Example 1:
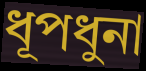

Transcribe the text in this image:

ধূপধুনা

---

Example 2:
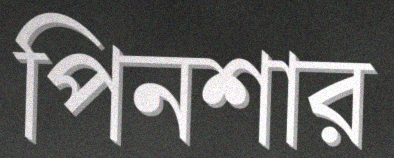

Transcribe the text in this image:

পিনশার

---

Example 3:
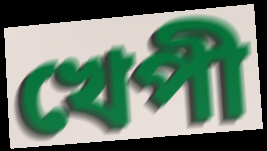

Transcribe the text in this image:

খেপী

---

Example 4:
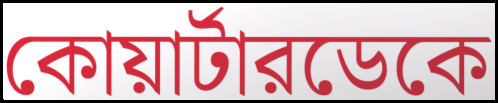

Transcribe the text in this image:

কোয়ার্টারডেকে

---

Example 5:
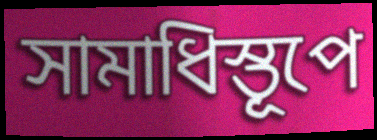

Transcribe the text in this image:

সামাধিস্তূপে